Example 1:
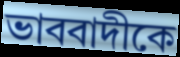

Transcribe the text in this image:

ভাববাদীকে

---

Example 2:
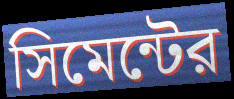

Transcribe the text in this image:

সিমেন্টের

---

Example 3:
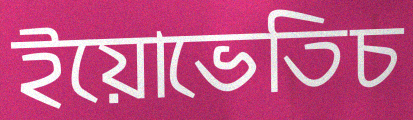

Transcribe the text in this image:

ইয়োভেতিচ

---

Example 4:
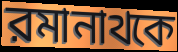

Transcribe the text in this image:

রমানাথকে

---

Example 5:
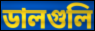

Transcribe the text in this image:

ডালগুলি